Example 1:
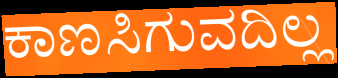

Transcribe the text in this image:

ಕಾಣಸಿಗುವದಿಲ್ಲ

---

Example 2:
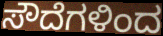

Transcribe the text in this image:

ಸೌದೆಗಳಿಂದ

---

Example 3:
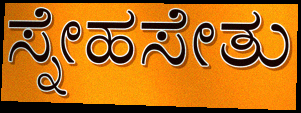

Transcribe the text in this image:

ಸ್ನೇಹಸೇತು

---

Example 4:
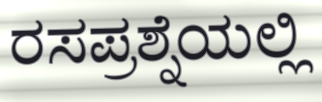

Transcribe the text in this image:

ರಸಪ್ರಶ್ನೆಯಲ್ಲಿ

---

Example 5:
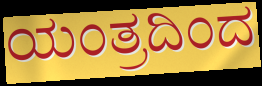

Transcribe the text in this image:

ಯಂತ್ರದಿಂದ